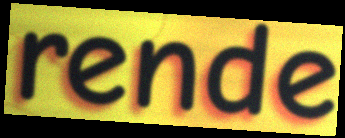
rende